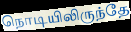
நொடியிலிருந்தே